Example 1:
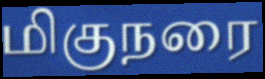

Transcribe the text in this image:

மிகுநரை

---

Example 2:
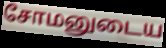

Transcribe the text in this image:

சோமனுடைய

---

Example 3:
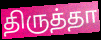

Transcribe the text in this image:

திருத்தா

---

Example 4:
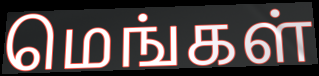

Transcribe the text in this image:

மெங்கள்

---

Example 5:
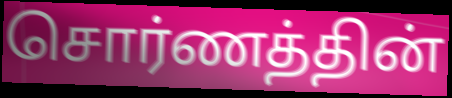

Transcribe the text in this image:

சொர்ணத்தின்